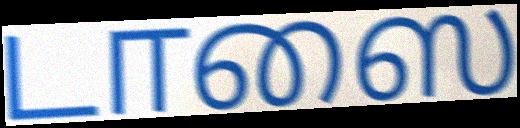
டாஸை